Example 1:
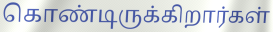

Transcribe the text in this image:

கொண்டிருக்கிறார்கள்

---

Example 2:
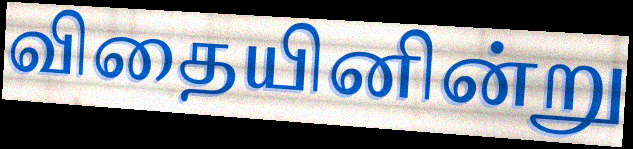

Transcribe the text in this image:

விதையினின்று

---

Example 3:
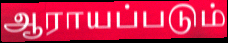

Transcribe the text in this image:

ஆராயப்படும்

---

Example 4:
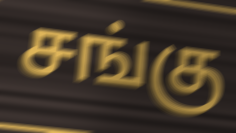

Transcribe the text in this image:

சங்கு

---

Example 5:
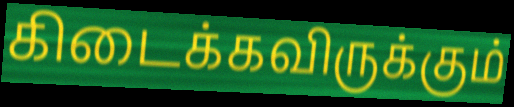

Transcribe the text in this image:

கிடைக்கவிருக்கும்